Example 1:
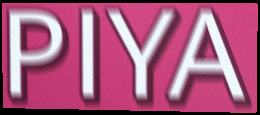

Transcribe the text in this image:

PIYA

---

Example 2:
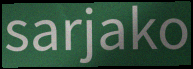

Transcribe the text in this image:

sarjako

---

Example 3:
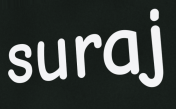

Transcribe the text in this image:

suraj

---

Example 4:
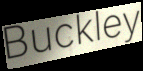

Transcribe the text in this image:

Buckley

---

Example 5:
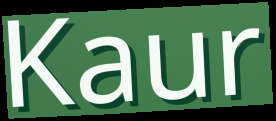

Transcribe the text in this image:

Kaur